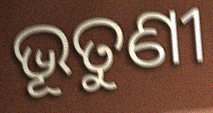
ଭୂତୁଣୀ